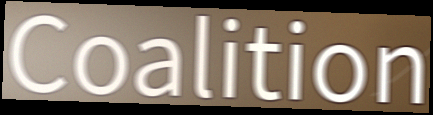
Coalition